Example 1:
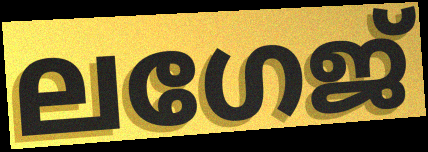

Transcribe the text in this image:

ലഗേജ്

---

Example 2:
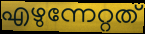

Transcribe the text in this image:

എഴുന്നേറ്റത്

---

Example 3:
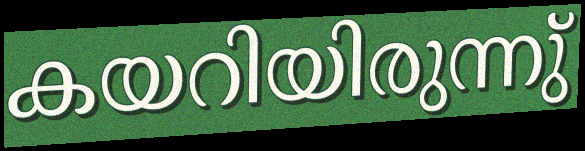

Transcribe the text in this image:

കയറിയിരുന്നു്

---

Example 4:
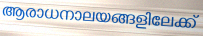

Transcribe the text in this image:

ആരാധനാലയങ്ങളിലേക്ക്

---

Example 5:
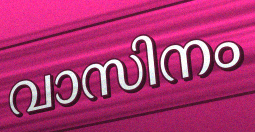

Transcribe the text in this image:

വാസിനം